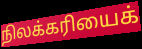
நிலக்கரியைக்